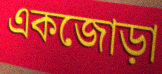
একজোড়া